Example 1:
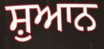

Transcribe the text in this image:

ਸ਼ੁਆਨ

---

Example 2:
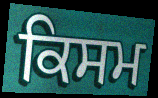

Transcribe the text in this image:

ਕਿਸਮ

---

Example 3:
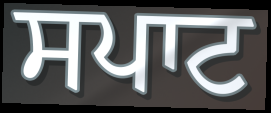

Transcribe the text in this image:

ਸਪਾਟ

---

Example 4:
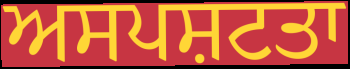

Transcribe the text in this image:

ਅਸਪਸ਼ਟਤਾ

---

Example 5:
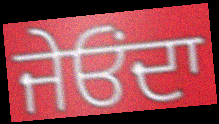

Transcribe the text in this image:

ਜੇਓੰਦਾ